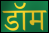
डॉम